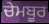
ਚੇਮਬੂਰ